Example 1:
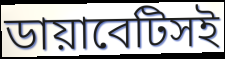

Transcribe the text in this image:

ডায়াবেটিসই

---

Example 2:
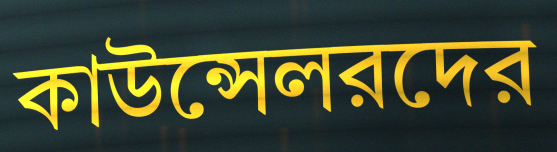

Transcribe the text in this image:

কাউন্সেলরদের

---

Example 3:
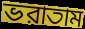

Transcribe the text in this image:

ভরাতাম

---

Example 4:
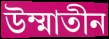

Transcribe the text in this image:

উম্মাতীন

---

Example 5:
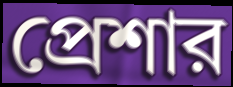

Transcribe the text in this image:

প্রেশার